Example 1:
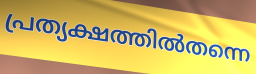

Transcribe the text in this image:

പ്രത്യക്ഷത്തിൽതന്നെ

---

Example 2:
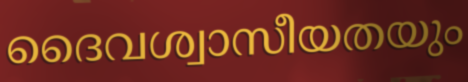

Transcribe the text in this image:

ദൈവശ്വാസീയതയും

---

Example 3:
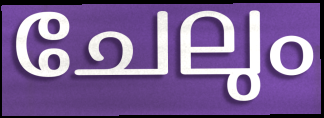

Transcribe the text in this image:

ചേലും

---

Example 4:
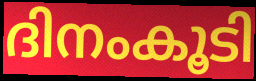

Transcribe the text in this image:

ദിനംകൂടി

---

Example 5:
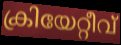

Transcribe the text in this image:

ക്രിയേറ്റീവ്